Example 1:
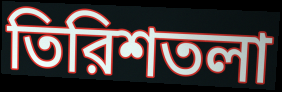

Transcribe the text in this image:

তিরিশতলা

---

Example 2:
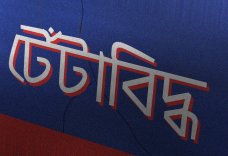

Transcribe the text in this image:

টেঁটাবিদ্ধ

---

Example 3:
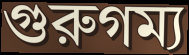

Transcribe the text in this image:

গুরুগম্য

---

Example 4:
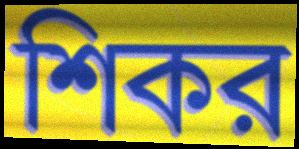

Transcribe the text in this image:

শিকর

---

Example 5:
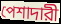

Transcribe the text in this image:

পেশাদারী